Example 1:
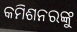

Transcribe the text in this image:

କମିଶନରଙ୍କୁ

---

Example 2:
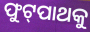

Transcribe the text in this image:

ଫୁଟ୍‌ପାଥକୁ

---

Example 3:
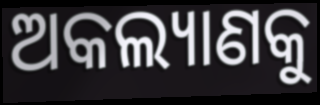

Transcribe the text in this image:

ଅକଲ୍ୟାଣକୁ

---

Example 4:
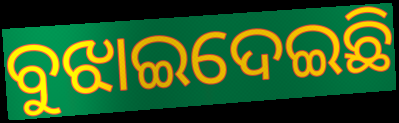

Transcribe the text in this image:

ବୁଝାଇଦେଇଛି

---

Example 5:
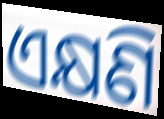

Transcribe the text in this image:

ଏକ୍ଷଣି